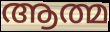
ആത്മ